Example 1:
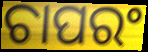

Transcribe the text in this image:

ଚାପରଂ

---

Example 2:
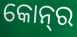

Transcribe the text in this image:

କୋନ୍‌ର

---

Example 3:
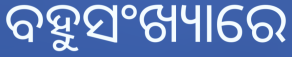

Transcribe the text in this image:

ବହୁସଂଖ୍ୟାରେ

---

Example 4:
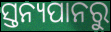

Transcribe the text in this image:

ସ୍ତନ୍ୟପାନରୁ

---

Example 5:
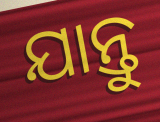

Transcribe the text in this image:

ଯାନ୍ତୁ